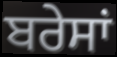
ਬਰੇਸਾਂ